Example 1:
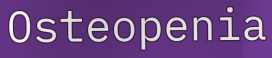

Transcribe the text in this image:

Osteopenia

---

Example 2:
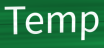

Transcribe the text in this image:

Temp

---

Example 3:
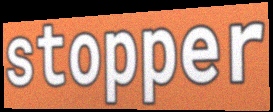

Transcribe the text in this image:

stopper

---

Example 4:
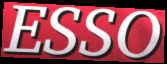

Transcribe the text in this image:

ESSO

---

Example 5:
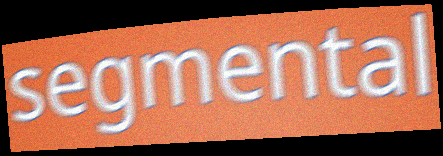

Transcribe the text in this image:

segmental